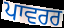
ਪਾਵਰਰ